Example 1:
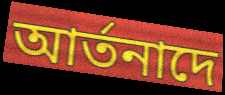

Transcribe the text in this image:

আর্তনাদে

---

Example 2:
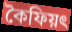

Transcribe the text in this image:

কৈফিয়ৎ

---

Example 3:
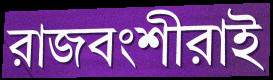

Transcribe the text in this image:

রাজবংশীরাই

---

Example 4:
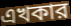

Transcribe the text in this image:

এখকার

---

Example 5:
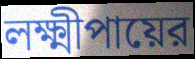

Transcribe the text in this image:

লক্ষ্মীপায়ের